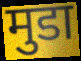
मुडा